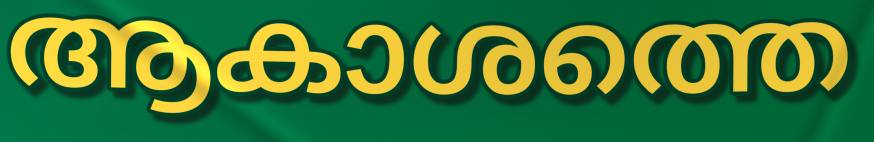
ആകാശത്തെ